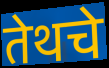
तेथचे